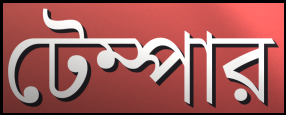
টেম্পার